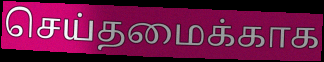
செய்தமைக்காக